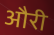
औरी